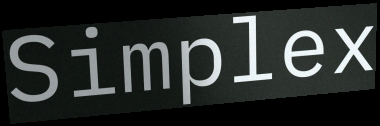
Simplex